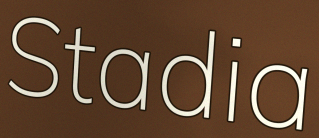
Stadia